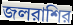
জলরাশির